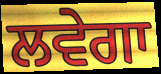
ਲਵੇਗਾ